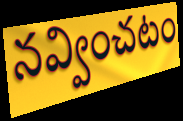
నవ్వించటం